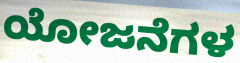
ಯೋಜನೆಗಳ